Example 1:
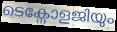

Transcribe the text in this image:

ടെക്നോളജിയും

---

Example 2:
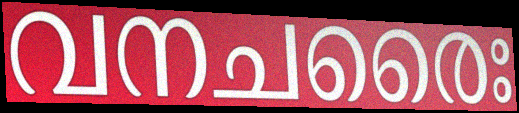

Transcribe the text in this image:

വനചരൈഃ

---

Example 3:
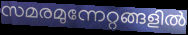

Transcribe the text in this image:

സമരമുന്നേറ്റങ്ങളിൽ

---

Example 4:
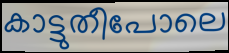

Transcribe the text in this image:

കാട്ടുതീപോലെ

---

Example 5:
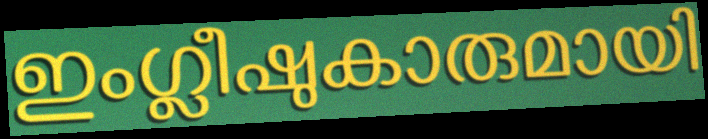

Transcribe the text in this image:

ഇംഗ്ലീഷുകാരുമായി